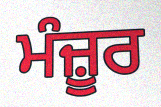
ਮੰਜ਼ੂਰ